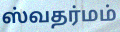
ஸ்வதர்மம்